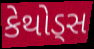
કેથોડ્સ